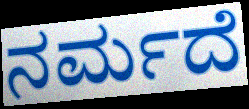
ನರ್ಮದೆ